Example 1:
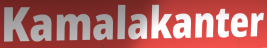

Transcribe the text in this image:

Kamalakanter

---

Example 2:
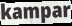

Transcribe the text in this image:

kampar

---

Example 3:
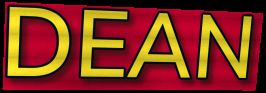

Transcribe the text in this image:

DEAN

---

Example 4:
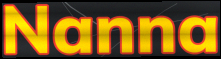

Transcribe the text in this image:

Nanna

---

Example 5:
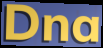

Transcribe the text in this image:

Dna